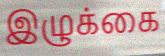
இழுக்கை